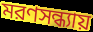
মরণসন্ধ্যায়